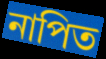
নাপিত